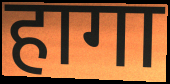
हागा